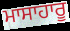
ਮਾਸਾਹਾਰੂ